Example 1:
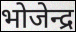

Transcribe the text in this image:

भोजेन्द्र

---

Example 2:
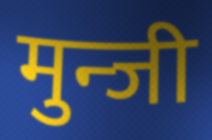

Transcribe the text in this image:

मुन्जी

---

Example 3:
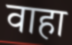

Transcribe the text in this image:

वाहा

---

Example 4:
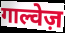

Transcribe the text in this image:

गाल्वेज़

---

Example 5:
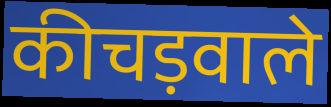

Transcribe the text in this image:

कीचड़वाले